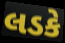
લડકે